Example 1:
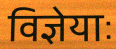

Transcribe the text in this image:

विज्ञेयाः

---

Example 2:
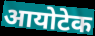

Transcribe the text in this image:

आयोटेक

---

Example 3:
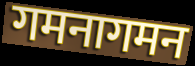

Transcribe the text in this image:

गमनागमन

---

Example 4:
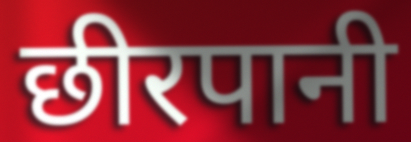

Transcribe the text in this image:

छीरपानी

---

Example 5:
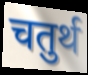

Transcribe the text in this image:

चतुर्थ